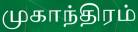
முகாந்திரம்